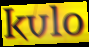
kulo